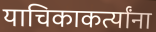
याचिकाकर्त्यांना